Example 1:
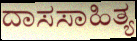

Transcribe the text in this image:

ದಾಸಸಾಹಿತ್ಯ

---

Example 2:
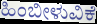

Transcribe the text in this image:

ಹಿಂಬೀಳುವಿಕೆ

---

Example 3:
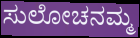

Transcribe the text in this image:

ಸುಲೋಚನಮ್ಮ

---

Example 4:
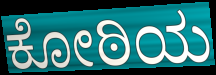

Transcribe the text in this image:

ಕೋಠಿಯ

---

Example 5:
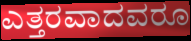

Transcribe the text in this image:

ಎತ್ತರವಾದವರೂ